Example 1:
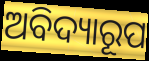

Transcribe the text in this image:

ଅବିଦ୍ୟାରୂପ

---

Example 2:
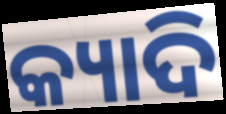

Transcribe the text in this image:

କ୍ୟାଦି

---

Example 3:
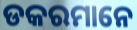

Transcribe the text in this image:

ଡକରମାନେ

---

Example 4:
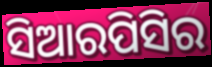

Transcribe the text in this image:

ସିଆରପିସିର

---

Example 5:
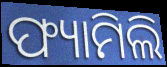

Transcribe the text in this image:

ଫ୍ୟାମିଲି